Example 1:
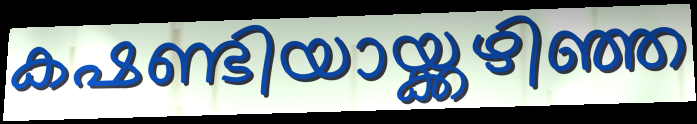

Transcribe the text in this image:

കഷണ്ടിയായ്ക്കഴിഞ്ഞ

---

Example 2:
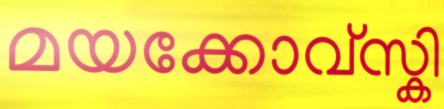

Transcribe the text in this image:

മയക്കോവ്സ്കി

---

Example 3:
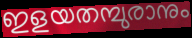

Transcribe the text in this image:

ഇളയതമ്പുരാനും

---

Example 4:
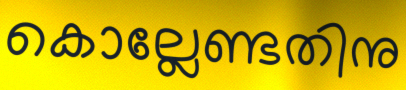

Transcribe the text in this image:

കൊല്ലേണ്ടതിനു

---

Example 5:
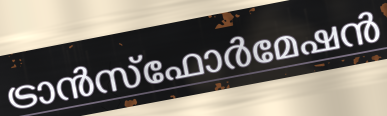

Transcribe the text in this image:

ട്രാൻസ്ഫോർമേഷൻ